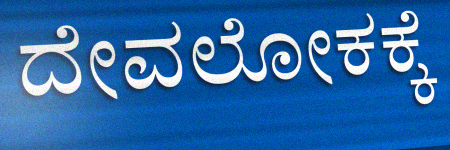
ದೇವಲೋಕಕ್ಕೆ